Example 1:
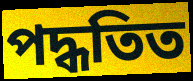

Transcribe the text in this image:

পদ্ধতিত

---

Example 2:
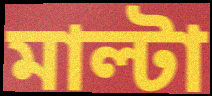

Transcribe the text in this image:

মাল্টা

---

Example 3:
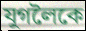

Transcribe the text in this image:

যুগলৈকে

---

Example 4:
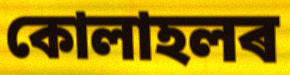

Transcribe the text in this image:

কোলাহলৰ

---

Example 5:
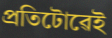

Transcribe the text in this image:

প্ৰতিটোৱেই